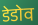
डेडोव